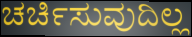
ಚರ್ಚಿಸುವುದಿಲ್ಲ